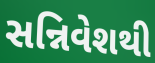
સન્નિવેશથી